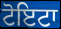
ਟੋਇਟਾ